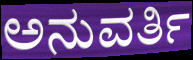
ಅನುವರ್ತಿ